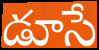
డూసే